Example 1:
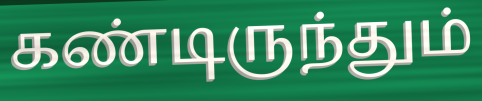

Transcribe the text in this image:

கண்டிருந்தும்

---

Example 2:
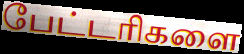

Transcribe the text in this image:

பேட்டரிகளை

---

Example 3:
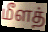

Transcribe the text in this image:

மீளத்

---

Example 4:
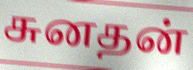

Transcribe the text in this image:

சுனதன்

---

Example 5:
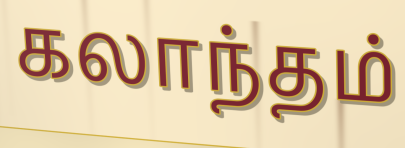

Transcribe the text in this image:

கலாந்தம்